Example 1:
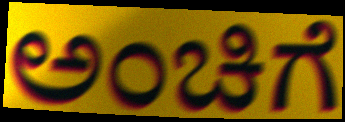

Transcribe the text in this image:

ಅಂಚಿಗೆ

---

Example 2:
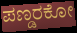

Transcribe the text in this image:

ಪಣ್ಡರಕೋ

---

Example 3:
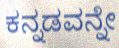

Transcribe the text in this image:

ಕನ್ನಡವನ್ನೇ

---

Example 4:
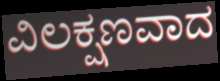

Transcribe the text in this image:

ವಿಲಕ್ಷಣವಾದ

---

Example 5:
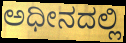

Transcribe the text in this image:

ಅಧೀನದಲ್ಲಿ